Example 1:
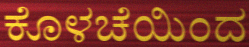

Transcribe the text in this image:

ಕೊಳಚೆಯಿಂದ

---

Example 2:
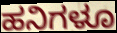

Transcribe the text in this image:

ಹನಿಗಳೂ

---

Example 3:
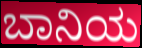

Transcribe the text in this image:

ಬಾನಿಯ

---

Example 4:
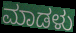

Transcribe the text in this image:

ಮಾಡಳು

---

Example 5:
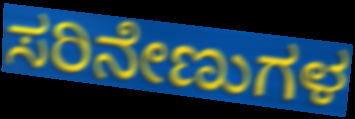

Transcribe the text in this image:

ಸರಿನೇಣುಗಳ